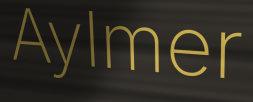
Aylmer